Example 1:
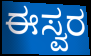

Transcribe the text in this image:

ಈಸ್ವರ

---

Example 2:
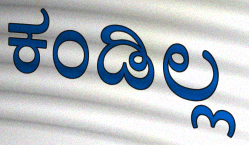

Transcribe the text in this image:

ಕಂಡಿಲ್ಲ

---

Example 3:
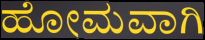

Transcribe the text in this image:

ಹೋಮವಾಗಿ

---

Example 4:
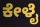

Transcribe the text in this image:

ಕೇಳೈ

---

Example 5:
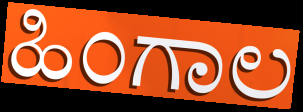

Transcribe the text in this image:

ಹಿಂಗಾಲ